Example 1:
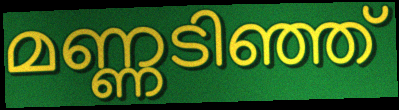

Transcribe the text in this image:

മണ്ണടിഞ്ഞ്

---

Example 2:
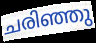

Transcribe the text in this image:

ചരിഞ്ഞു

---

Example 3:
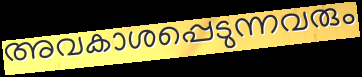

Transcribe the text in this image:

അവകാശപ്പെടുന്നവരും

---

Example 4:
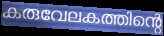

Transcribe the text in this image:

കരുവേലകത്തിന്റെ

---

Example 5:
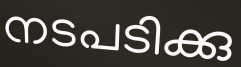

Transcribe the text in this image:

നടപടിക്കു